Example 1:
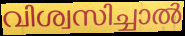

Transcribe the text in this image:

വിശ്വസിച്ചാൽ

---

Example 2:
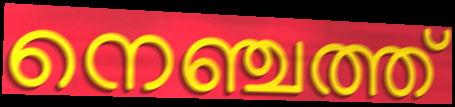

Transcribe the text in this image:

നെഞ്ചത്ത്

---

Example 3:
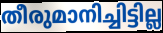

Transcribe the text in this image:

തീരുമാനിച്ചിട്ടില്ല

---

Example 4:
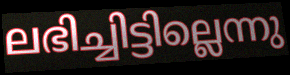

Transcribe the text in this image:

ലഭിച്ചിട്ടില്ലെന്നു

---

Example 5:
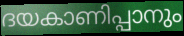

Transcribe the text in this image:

ദയകാണിപ്പാനും